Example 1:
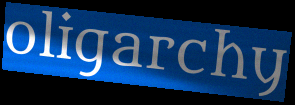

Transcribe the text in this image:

oligarchy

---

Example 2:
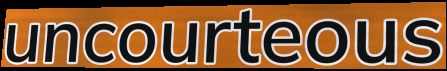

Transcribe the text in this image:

uncourteous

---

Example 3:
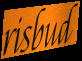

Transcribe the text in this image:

risbud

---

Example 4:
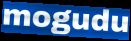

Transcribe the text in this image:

mogudu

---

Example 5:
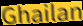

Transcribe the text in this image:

Ghailan